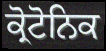
ਕ੍ਰੋਟੋਨਿਕ